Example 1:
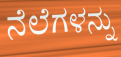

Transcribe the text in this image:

ನೆಲೆಗಳನ್ನು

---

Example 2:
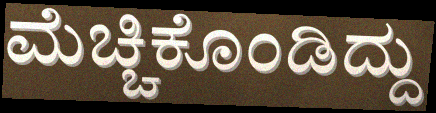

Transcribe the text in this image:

ಮೆಚ್ಚಿಕೊಂಡಿದ್ದು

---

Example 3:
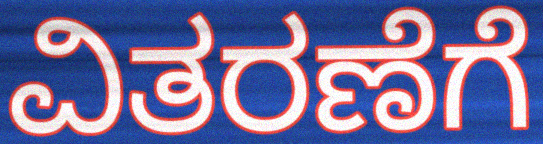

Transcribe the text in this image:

ವಿತರಣೆಗೆ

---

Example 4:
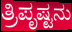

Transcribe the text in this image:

ತ್ರಿಪೃಷ್ಟನು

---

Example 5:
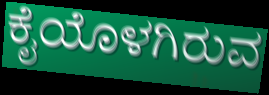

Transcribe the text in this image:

ಕೈಯೊಳಗಿರುವ